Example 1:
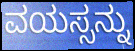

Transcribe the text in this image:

ವಯಸ್ಸನ್ನು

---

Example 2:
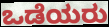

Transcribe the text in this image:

ಒಡೆಯರು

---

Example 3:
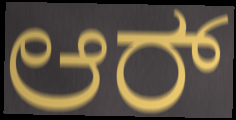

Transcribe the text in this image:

ಆರ್‍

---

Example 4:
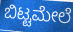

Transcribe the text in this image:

ಬಿಟ್ಟಮೇಲೆ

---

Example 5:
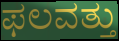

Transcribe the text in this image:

ಫಲವತ್ತು